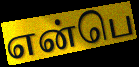
என்பெ